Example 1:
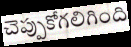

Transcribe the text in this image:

చెప్పుకోగలిగింది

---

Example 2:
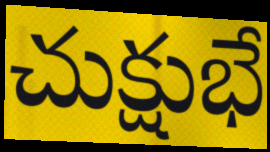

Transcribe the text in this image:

చుక్షుభే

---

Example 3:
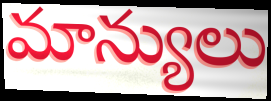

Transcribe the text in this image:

మాన్యులు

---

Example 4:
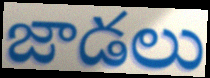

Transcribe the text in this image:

జాడలు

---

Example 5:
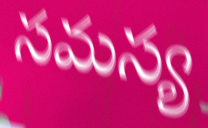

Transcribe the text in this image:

సమస్య